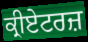
ਕ੍ਰੀਏਟਰਜ਼